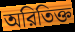
অরিতিক্ত